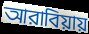
আরাবিয়ায়